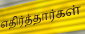
எதிர்த்தார்கள்